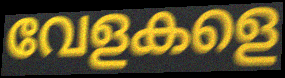
വേളകളെ